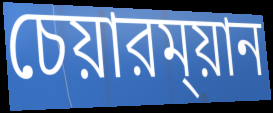
চেয়ারম্য়ান